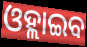
ଓହ୍ଲାଇବ